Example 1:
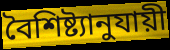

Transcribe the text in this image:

বৈশিষ্ট্যানুযায়ী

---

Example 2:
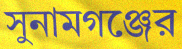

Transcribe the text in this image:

সুনামগঞ্জের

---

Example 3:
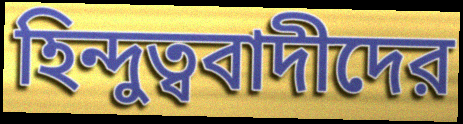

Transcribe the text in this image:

হিন্দুত্ববাদীদের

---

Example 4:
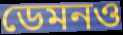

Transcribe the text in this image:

ডেমনও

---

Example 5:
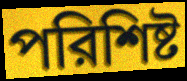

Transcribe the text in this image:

পরিশিষ্ট